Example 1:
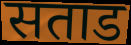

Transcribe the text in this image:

सताड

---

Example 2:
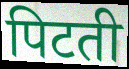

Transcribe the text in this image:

पिटती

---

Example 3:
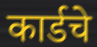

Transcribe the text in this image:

कार्डचे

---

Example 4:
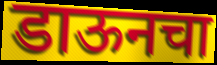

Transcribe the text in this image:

डाऊनचा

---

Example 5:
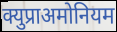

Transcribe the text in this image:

क्युप्राअमोनियम